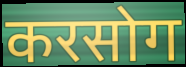
करसोग